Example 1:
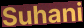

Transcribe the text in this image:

Suhani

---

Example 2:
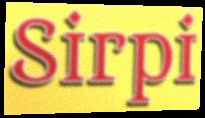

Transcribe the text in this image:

Sirpi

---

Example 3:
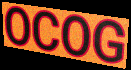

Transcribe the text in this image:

OCOG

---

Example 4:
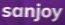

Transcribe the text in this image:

sanjoy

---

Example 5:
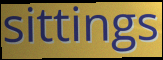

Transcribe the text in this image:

sittings